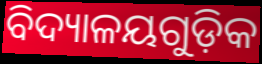
ବିଦ୍ୟାଳୟଗୁଡ଼ିକ